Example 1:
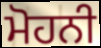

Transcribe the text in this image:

ਮੋਹਨੀ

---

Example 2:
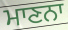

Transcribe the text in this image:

ਮਾਣਨਾ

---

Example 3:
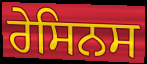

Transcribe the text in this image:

ਰੇਸਿਨਸ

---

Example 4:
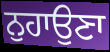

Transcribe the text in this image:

ਨੁਹਾਉਣਾ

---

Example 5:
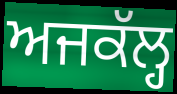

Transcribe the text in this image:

ਅਜਕੱਲ੍ਹ